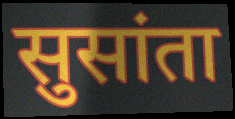
सुसांता